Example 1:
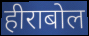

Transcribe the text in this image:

हीराबोल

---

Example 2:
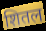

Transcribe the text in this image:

शितल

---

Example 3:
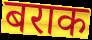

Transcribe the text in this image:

बराक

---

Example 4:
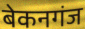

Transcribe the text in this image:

बेकनगंज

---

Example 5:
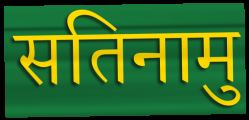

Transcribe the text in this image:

सतिनामु